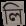
লি